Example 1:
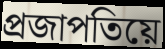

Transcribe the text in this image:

প্ৰজাপতিয়ে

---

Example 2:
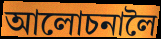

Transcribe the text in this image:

আলোচনালৈ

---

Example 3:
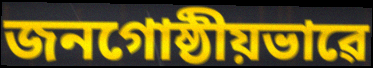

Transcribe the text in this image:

জনগোষ্ঠীয়ভাৱে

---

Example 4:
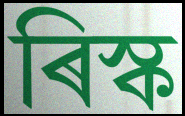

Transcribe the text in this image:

ৰিস্ক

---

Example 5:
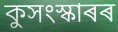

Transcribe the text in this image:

কুসংস্কাৰৰ